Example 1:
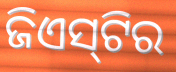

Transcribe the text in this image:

ଜିଏସ୍‌ଟିର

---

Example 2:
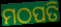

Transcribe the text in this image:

ମଠପତି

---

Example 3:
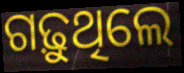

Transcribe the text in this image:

ଗଢ଼ୁଥିଲେ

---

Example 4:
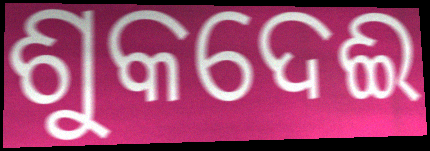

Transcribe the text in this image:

ଶୁକଦେଈ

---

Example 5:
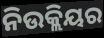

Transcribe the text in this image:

ନିଉକ୍ଲିୟର